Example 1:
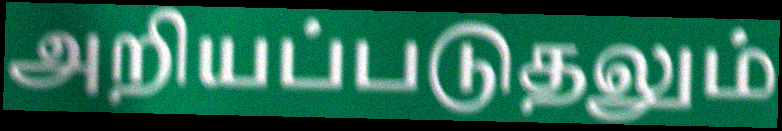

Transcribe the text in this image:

அறியப்படுதலும்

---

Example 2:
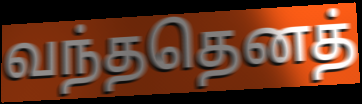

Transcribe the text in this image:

வந்ததெனத்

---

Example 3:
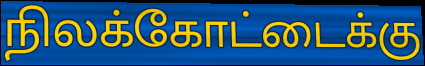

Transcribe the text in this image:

நிலக்கோட்டைக்கு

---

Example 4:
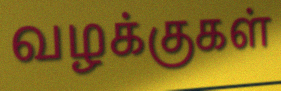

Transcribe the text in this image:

வழக்குகள்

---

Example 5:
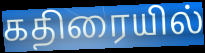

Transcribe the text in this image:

கதிரையில்